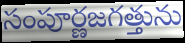
సంపూర్ణజగత్తును